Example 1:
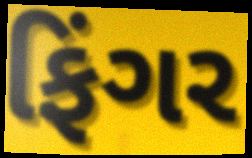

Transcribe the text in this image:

ફિંગર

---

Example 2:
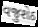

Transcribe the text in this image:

વજુશેઠ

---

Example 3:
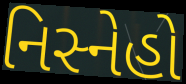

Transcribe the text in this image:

નિસ્નેહો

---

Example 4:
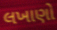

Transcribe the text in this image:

લખાણો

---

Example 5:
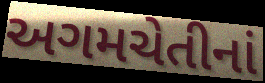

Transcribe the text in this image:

અગમચેતીનાં